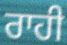
ਰਾਹੀ